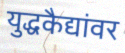
युद्धकैद्यांवर